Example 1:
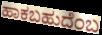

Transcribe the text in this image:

ಹಾಕಬಹುದೆಂಬ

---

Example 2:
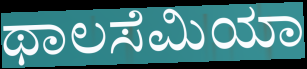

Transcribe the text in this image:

ಥಾಲಸೆಮಿಯಾ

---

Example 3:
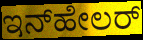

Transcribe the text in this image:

ಇನ್‌ಹೇಲರ್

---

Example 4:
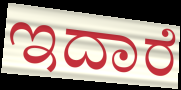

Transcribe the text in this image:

ಇದಾರೆ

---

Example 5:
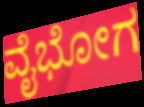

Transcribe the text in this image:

ವೈಭೋಗ